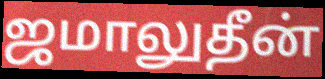
ஜமாலுதீன்